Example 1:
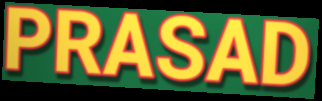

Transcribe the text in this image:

PRASAD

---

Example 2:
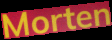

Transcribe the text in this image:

Morten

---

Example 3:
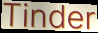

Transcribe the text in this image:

Tinder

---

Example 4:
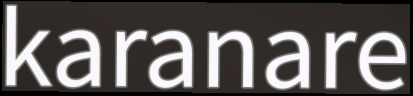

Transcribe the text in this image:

karanare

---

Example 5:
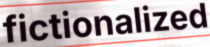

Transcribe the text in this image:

fictionalized